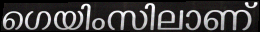
ഗെയിംസിലാണ്